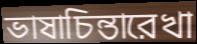
ভাষাচিন্তারেখা